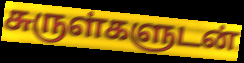
சுருள்களுடன்